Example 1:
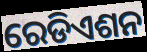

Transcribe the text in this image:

ରେଡିଏଶନ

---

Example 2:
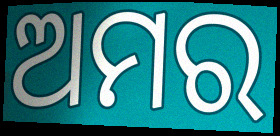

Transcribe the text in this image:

ଅମର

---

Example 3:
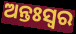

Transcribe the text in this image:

ଅନ୍ତଃସ୍ଵର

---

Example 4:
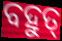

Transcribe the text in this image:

ବହୁତ୍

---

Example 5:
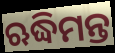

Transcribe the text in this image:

ଋଦ୍ଧିମନ୍ତ